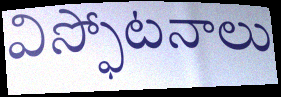
విస్ఫోటనాలు